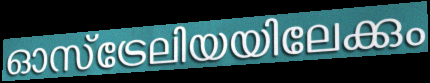
ഓസ്ട്രേലിയയിലേക്കും